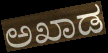
ಅಖಾಡ